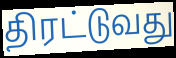
திரட்டுவது